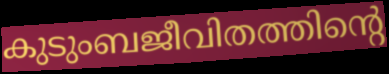
കുടുംബജീവിതത്തിന്റെ